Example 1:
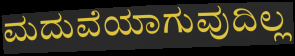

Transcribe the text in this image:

ಮದುವೆಯಾಗುವುದಿಲ್ಲ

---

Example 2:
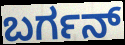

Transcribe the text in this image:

ಬರ್ಗನ್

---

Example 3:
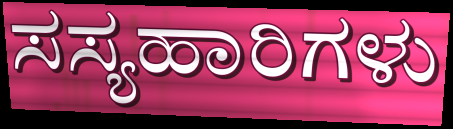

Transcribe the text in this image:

ಸಸ್ಯಹಾರಿಗಳು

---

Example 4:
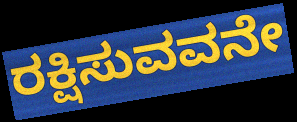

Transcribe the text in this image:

ರಕ್ಷಿಸುವವನೇ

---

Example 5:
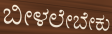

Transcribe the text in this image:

ಬೀಳಲೇಬೇಕು